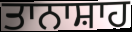
ਤਾਨਾਸ਼ਾਹ